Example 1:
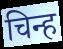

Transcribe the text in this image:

चिन्ह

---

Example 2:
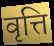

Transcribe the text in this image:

वृत्ति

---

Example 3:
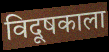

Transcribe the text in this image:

विदूषकाला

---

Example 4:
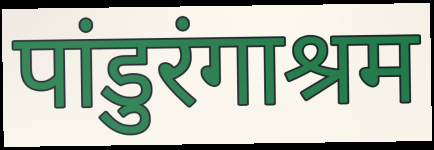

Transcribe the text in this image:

पांडुरंगाश्रम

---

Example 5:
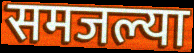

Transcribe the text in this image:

समजल्या